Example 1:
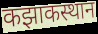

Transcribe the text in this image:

कझाकस्थान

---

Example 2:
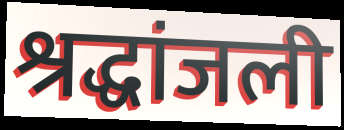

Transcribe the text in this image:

श्रद्धांजली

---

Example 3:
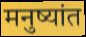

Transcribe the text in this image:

मनुष्यांत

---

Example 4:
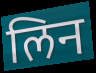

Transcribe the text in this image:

लिन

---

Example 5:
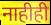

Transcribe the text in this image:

नाहीही